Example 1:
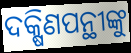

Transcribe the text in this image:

ଦକ୍ଷିଣପନ୍ଥୀଙ୍କୁ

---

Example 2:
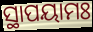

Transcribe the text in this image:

ସ୍ଥାପୟାମଃ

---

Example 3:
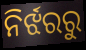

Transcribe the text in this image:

ନିର୍ଝରରୁ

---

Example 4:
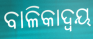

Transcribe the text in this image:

ବାଳିକାଦ୍ୱୟ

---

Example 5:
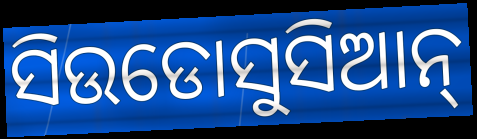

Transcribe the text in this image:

ସିଉଡୋସୁସିଆନ୍